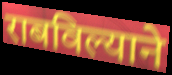
राबविल्याने